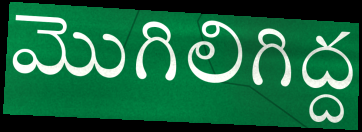
మొగిలిగిద్ద